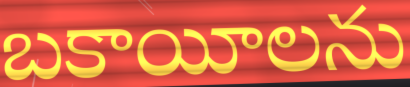
బకాయీలను